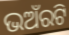
ଭଅଁରଟି